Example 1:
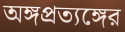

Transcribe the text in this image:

অঙ্গপ্রত্যঙ্গের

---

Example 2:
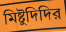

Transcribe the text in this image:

মিষ্টুদিদির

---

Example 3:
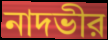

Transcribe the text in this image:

নাদভীর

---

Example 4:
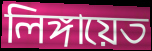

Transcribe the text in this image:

লিঙ্গায়েত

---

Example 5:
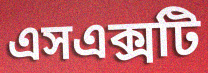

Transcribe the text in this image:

এসএক্সটি